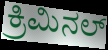
ಕ್ರಿಮಿನಲ್